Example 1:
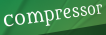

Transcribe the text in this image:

compressor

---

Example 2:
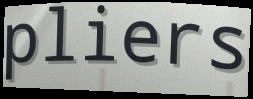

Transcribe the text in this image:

pliers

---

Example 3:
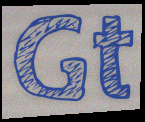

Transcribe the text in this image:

Gt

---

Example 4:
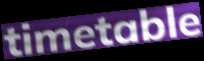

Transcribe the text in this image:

timetable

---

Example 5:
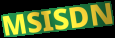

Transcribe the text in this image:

MSISDN